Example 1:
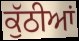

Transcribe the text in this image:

ਕੁੱਠੀਆਂ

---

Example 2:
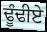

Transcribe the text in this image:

ਢੂੰਢੀਏ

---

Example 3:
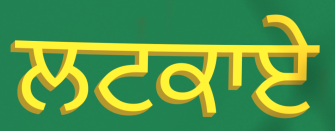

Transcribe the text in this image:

ਲਟਕਾਏ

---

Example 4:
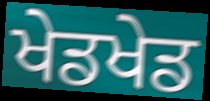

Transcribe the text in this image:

ਖੇਡਖੇਡ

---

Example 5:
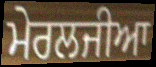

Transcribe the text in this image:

ਮੇਰਲਜੀਆ